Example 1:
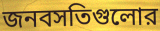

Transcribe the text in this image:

জনবসতিগুলোর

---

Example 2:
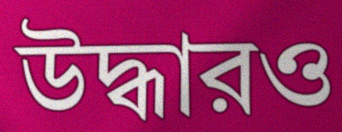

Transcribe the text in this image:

উদ্ধারও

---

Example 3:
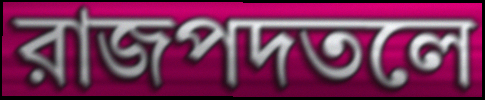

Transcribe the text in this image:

রাজপদতলে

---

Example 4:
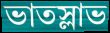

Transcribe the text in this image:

ভাতস্লাভ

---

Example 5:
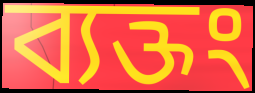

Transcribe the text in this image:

ব্যক্তং